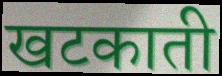
खटकाती